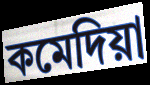
কমেদিয়া